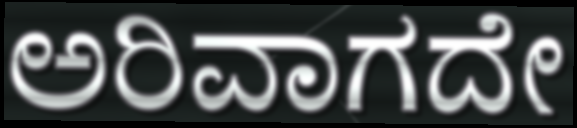
ಅರಿವಾಗದೇ